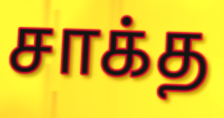
சாக்த